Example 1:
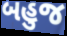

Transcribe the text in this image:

બહુજ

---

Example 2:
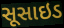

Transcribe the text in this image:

સૂસાઇડ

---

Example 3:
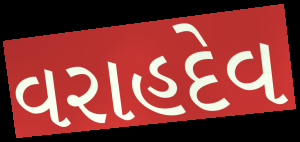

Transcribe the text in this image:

વરાહદેવ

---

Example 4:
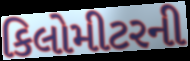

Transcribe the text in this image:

કિલોમીટરની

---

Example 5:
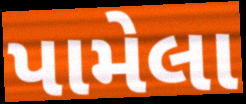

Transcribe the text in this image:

પામેલા